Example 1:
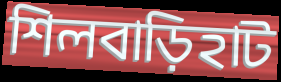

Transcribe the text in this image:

শিলবাড়িহাট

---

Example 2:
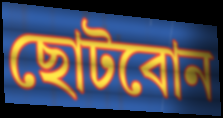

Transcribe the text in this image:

ছোটবোন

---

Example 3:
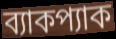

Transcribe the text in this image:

ব্যাকপ্যাক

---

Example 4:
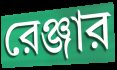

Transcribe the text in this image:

রেঞ্জার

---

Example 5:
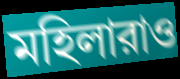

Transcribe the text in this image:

মহিলারাও